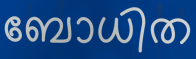
ബോധിത